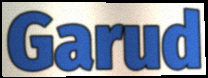
Garud